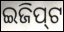
ଇଜିପ୍‍ଟ